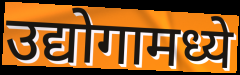
उद्योगामध्ये